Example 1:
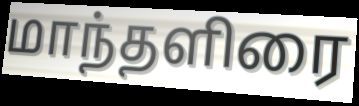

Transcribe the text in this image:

மாந்தளிரை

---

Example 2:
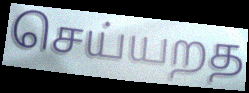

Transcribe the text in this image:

செய்யறத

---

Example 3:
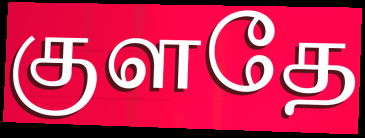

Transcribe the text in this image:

குளதே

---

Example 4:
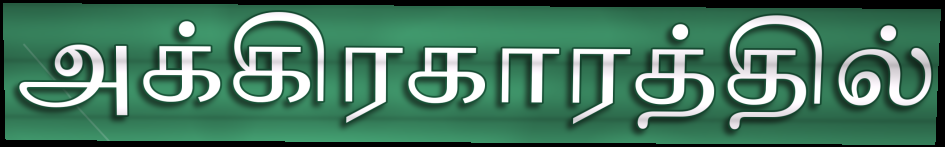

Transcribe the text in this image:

அக்கிரகாரத்தில்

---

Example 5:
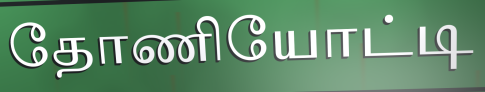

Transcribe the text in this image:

தோணியோட்டி